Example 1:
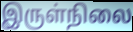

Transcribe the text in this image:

இருள்நிலை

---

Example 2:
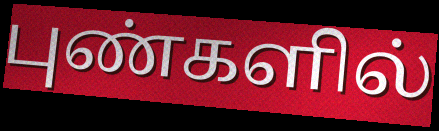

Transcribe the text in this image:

புண்களில்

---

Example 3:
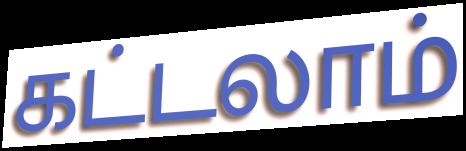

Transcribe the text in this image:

கட்டலாம்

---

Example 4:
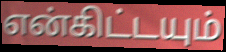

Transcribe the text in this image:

என்கிட்டயும்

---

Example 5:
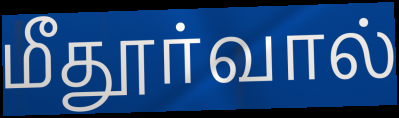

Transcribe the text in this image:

மீதூர்வால்